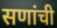
सणांची